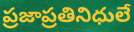
ప్రజాప్రతినిధులే